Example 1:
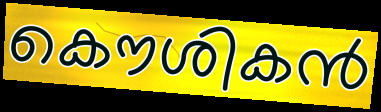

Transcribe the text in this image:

കൌശികൻ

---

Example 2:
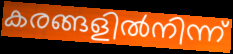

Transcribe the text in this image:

കരങ്ങളിൽനിന്ന്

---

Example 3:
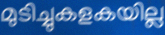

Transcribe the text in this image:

മുടിച്ചുകളകയില്ല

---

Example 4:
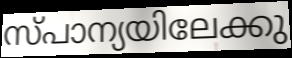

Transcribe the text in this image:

സ്പാന്യയിലേക്കു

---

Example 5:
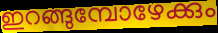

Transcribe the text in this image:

ഇറങ്ങുമ്പോഴേക്കും